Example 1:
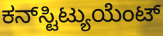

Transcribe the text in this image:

ಕನ್‌ಸ್ಟಿಟ್ಯುಯೆಂಟ್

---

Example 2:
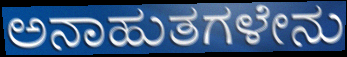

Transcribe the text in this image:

ಅನಾಹುತಗಳೇನು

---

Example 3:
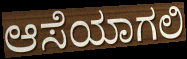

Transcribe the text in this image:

ಆಸೆಯಾಗಲಿ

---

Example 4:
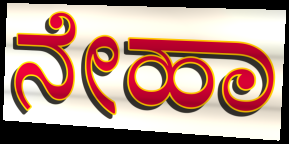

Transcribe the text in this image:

ನೇಹಾ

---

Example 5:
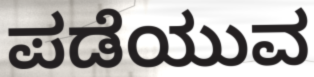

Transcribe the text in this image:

ಪಡೆಯುವ